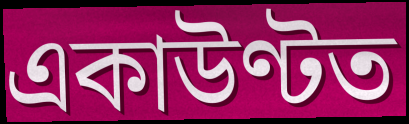
একাউণ্টত